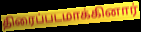
திரைப்படமாக்கினார்